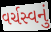
વર્ચસ્વનું